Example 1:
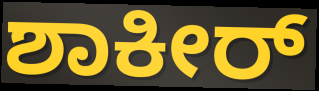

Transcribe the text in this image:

ಶಾಕೀರ್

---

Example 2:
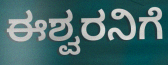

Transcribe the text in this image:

ಈಶ್ವರನಿಗೆ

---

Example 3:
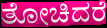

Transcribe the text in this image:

ತೋಚಿದರೆ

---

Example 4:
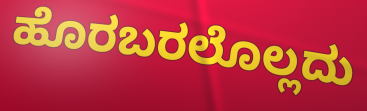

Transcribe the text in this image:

ಹೊರಬರಲೊಲ್ಲದು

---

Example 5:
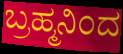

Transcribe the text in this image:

ಬ್ರಹ್ಮನಿಂದ